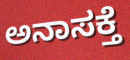
ಅನಾಸಕ್ತೆ